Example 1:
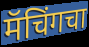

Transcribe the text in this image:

मॅचिंगचा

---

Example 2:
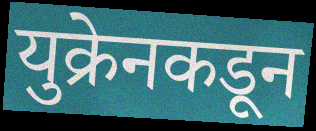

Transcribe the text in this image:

युक्रेनकडून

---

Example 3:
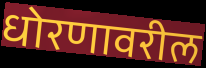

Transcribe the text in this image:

धोरणावरील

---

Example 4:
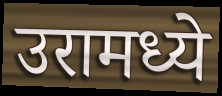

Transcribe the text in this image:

उरामध्ये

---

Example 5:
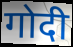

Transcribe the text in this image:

गोदी